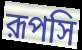
রূপসি